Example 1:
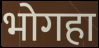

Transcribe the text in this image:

भोगहा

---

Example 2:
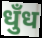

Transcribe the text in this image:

धुँध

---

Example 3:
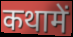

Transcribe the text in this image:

कथामें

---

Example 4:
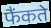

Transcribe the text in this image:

फैंकते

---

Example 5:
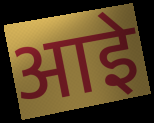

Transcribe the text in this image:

आइे